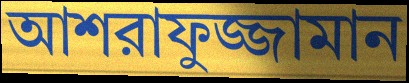
আশরাফুজ্জামান